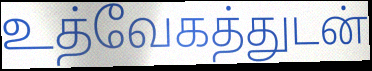
உத்வேகத்துடன்